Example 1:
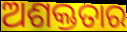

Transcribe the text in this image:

ଅଶକ୍ତତାର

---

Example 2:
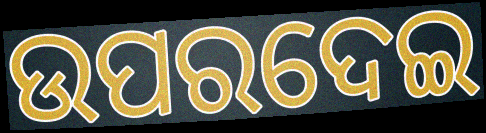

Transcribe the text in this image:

ଉପରଦେଇ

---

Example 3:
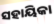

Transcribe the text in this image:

ସହାୟିକା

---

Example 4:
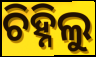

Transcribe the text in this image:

ଚିହ୍ନିଲୁ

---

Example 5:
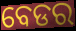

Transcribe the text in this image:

ବେଡର